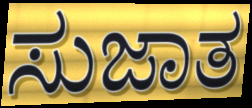
ಸುಜಾತ